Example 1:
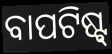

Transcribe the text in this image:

ବାପଟିଷ୍ଟ୍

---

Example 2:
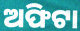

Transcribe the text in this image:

ଅଫିଟା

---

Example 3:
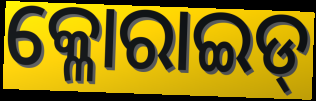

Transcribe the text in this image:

କ୍ଳୋରାଇଡ୍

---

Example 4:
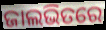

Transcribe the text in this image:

ଜାଲଭିତରେ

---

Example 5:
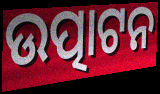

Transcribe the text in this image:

ଉତ୍ପାଟନ